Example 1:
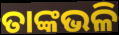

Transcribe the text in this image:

ତାଙ୍କଭଳି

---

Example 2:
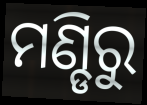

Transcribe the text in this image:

ମଣ୍ଡିରୁ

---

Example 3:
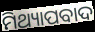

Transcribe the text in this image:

ମିଥ୍ୟାପବାଦ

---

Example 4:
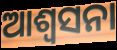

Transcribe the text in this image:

ଆଶ୍ୱସନା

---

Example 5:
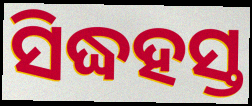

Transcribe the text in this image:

ସିଦ୍ଧହସ୍ତ